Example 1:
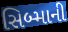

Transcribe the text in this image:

સિબ્માની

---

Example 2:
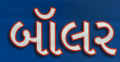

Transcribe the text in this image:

બૉલર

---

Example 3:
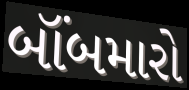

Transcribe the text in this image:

બૉંબમારો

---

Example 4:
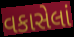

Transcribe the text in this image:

વકાસેલાં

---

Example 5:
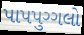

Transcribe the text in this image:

પાપપુગ્ગલો